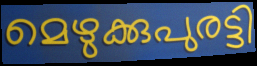
മെഴുക്കുപുരട്ടി